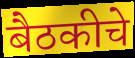
बैठकीचे